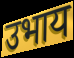
उभाय